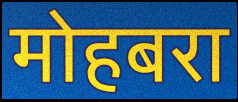
मोहबरा